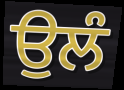
ਉਲੰ